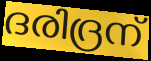
ദരിദ്രന്